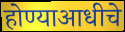
होण्याआधीचे